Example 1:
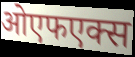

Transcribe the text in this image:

ओएफएक्स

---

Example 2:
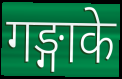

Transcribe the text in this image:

गङ्गाके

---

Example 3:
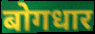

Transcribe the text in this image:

बोगधार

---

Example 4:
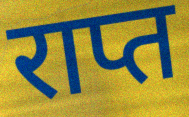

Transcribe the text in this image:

राप्त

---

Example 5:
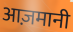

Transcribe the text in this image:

आज़मानी